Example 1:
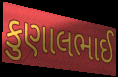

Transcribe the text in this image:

કુણાલભાઈ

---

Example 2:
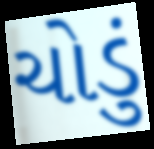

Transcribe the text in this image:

ચોડું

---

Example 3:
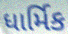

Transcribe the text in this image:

ધાર્મિક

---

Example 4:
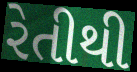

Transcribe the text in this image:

રેતીથી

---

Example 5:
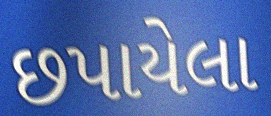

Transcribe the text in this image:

છપાયેલા